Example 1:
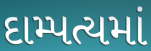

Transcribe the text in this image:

દામ્પત્યમાં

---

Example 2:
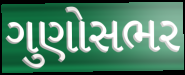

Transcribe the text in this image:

ગુણોસભર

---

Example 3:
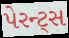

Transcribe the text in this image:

પેરન્ટ્સ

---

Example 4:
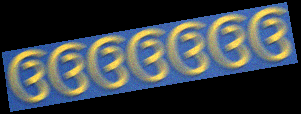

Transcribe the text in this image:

ઉઉઉઉઉઉઉ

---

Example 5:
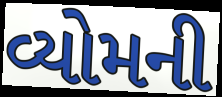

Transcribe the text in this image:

વ્યોમની